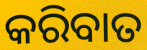
କରିବାତ